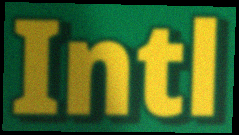
Intl